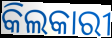
କିଲକାରୀ